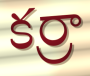
కర్రా